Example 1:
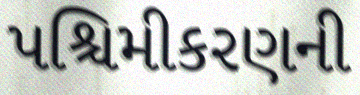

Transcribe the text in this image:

પશ્ચિમીકરણની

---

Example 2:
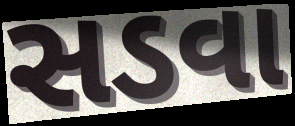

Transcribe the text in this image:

સડવા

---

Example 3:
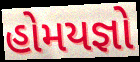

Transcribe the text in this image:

હોમયજ્ઞો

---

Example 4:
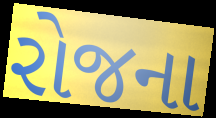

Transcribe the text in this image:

રોજના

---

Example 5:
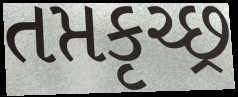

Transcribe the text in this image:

તપ્તકૃચ્છ્ર